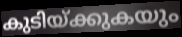
കുടിയ്ക്കുകയും